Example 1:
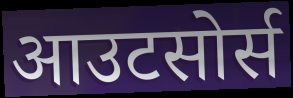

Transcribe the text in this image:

आउटसोर्स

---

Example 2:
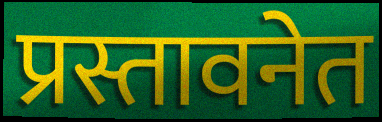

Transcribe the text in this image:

प्रस्तावनेत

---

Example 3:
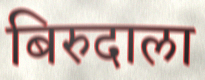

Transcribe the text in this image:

बिरुदाला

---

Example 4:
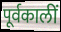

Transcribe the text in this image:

पूर्वकालीं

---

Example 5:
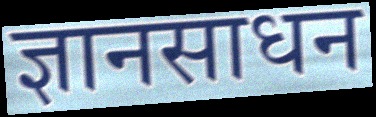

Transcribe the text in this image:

ज्ञानसाधन